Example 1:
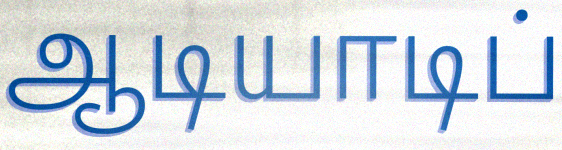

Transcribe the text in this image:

ஆடியாடிப்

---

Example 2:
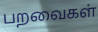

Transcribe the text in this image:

பறவைகள்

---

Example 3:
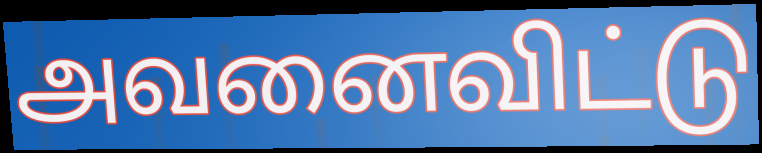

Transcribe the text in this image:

அவனைவிட்டு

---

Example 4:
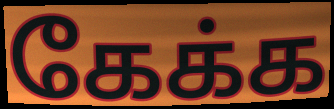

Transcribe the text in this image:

கேக்க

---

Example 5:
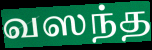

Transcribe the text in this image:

வஸந்த